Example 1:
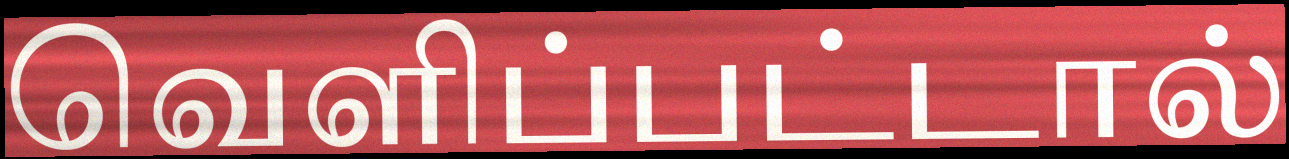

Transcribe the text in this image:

வெளிப்பட்டால்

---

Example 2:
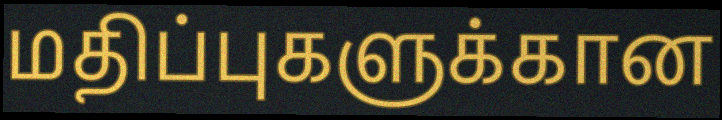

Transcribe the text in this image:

மதிப்புகளுக்கான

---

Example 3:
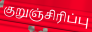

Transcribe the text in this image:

குறுஞ்சிரிப்பு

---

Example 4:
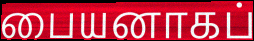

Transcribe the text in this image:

பையனாகப்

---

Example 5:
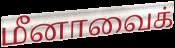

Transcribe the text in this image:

மீனாவைக்